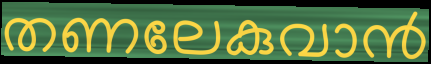
തണലേകുവാൻ